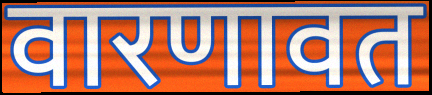
वारणावत